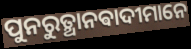
ପୁନରୁତ୍ଥାନଵାଦୀମାନେ